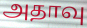
அதாவு